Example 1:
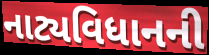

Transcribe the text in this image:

નાટ્યવિધાનની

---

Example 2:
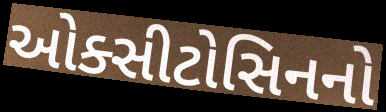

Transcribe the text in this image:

ઓક્સીટોસિનનો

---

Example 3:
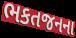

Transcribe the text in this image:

ભકતજનના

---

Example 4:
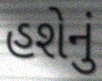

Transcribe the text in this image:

હશેનું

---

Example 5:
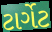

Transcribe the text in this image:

ટાર્ગેટ